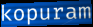
kopuram